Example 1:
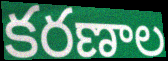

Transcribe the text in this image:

కరణాల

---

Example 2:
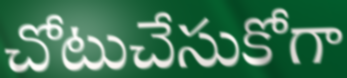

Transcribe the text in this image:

చోటుచేసుకోగా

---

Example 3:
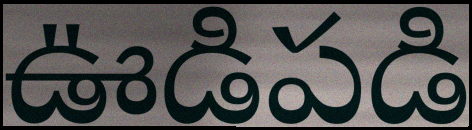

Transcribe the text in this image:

ఊడిపడి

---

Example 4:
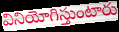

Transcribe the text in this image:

వినియోగిస్తుంటారు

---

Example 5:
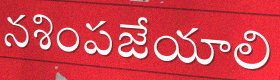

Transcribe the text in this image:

నశింపజేయాలి